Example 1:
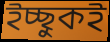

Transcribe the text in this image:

ইচ্ছুকই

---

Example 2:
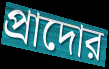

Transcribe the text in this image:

প্রাদোর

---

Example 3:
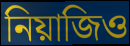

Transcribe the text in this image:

নিয়াজিও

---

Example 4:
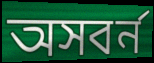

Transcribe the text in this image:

অসবর্ন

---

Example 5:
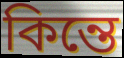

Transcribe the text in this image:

কিন্তে